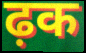
ढ़क